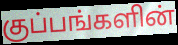
குப்பங்களின்